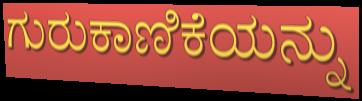
ಗುರುಕಾಣಿಕೆಯನ್ನು